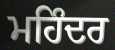
ਮਹਿੰਦਰ